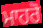
ਮਾਹਰੋ